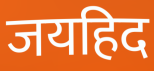
जयहिद